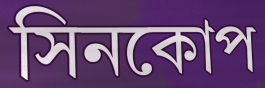
সিনকোপ